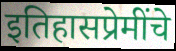
इतिहासप्रेमींचे